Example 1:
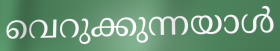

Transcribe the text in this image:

വെറുക്കുന്നയാൾ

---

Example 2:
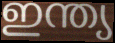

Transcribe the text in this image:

ഇന്ത്യ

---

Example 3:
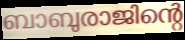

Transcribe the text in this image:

ബാബുരാജിന്റെ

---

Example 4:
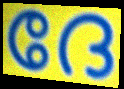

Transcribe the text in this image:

ദേ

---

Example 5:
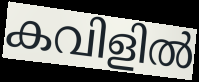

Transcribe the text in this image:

കവിളിൽ